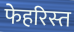
फेहरिस्‍त